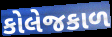
કોલેજકાળ